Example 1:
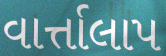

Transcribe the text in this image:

વાર્ત્તાલાપ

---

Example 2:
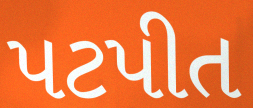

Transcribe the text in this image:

પટપીત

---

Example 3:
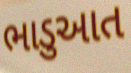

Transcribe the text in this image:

ભાડુઆત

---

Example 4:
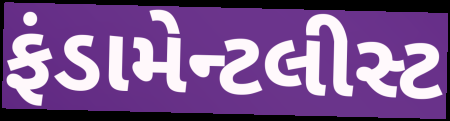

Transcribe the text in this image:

ફંડામેન્ટલીસ્ટ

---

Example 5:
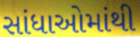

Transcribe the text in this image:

સાંધાઓમાંથી